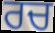
ਰਚ